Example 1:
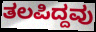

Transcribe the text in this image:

ತಲಪಿದ್ದವು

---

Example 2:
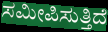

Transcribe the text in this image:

ಸಮೀಪಿಸುತ್ತಿದೆ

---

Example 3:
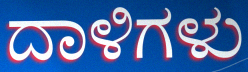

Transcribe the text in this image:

ದಾಳಿಗಳು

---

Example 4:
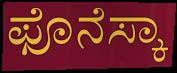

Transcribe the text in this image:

ಫೊನೆಸ್ಕಾ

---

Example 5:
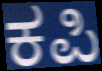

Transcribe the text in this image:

ಕಪಿ